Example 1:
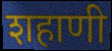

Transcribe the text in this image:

शहाणी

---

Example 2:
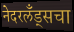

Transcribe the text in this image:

नेदरलँड्सचा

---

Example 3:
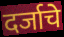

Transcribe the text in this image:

दर्जाचे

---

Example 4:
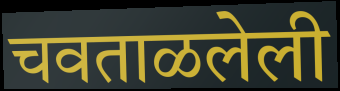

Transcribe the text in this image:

चवताळलेली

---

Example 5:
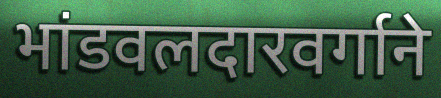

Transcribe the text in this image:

भांडवलदारवर्गाने